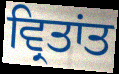
ਵ੍ਰਿਤਾਂਤ